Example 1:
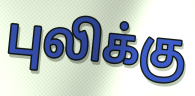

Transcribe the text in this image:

புலிக்கு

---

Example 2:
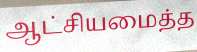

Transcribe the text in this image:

ஆட்சியமைத்த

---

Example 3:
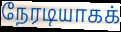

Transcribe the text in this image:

நேரடியாகக்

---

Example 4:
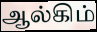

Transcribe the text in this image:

ஆல்கிம்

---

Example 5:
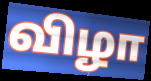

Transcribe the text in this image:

விழா